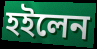
হইলেন